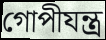
গোপীযন্ত্র